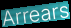
Arrears